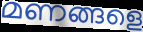
മണങ്ങളെ